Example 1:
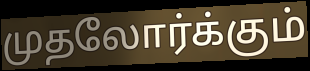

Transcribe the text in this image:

முதலோர்க்கும்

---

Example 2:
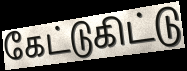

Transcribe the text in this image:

கேட்டுகிட்டு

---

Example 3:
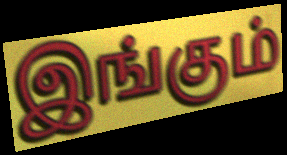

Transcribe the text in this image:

இங்கும்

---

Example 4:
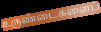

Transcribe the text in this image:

உருண்டைகளைப்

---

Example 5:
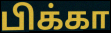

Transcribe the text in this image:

பிக்கா